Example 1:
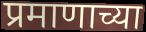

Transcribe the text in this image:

प्रमाणाच्या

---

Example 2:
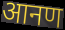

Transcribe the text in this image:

आनण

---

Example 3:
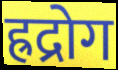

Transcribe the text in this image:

ह्रद्रोग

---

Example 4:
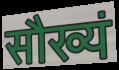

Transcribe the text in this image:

सौख्यं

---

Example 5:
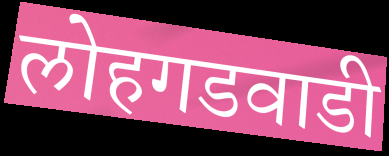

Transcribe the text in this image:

लोहगडवाडी